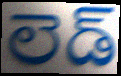
లెడ్